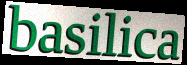
basilica